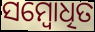
ସମ୍ବୋଧିତ